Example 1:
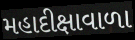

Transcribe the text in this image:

મહાદીક્ષાવાળા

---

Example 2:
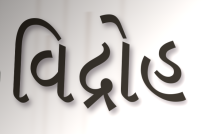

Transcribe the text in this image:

વિદ્રોહ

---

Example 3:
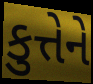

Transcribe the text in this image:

કુત્તેને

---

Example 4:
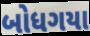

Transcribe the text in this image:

બોધગયા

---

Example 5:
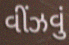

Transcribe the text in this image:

વીંઝવું